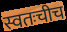
स्वतःचीच